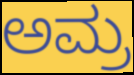
ಅಮ್ರ